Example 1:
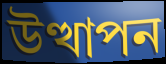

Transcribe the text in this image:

উত্থাপন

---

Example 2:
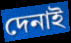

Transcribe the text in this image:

দেনাই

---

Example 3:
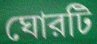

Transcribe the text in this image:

ঘোরটি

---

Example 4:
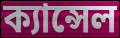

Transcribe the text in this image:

ক্যান্সেল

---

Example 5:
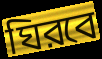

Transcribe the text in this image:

ঘিরবে